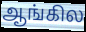
ஆங்கில